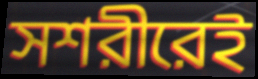
সশরীরেই